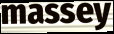
massey